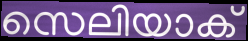
സെലിയാക്